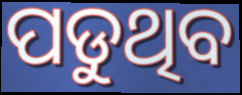
ପଡୁଥିବ